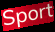
Sport